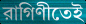
রাগিণীতেই